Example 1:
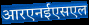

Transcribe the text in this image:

आरएनईएसएल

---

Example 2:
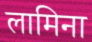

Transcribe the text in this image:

लामिना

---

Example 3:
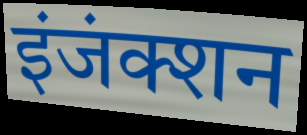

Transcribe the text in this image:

इंजंक्शन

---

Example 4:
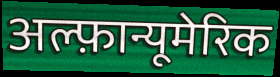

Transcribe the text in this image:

अल्फ़ान्यूमेरिक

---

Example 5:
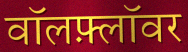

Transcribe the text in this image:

वॉलफ़्लॉवर